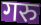
गरु